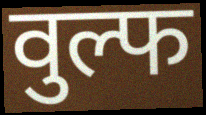
वुल्फ